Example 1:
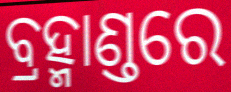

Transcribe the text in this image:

ବ୍ରହ୍ମାଣ୍ଡରେ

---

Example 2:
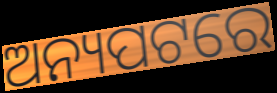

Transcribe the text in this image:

ଅନ୍ୟପଟରେ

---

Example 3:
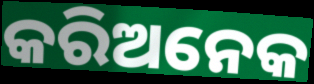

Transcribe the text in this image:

କରିଅନେକ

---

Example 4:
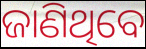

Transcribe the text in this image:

ଜାଣିଥିବେ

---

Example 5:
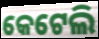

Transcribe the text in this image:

କେଟେଲି